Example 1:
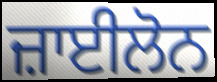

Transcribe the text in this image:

ਜ਼ਾਈਲੋਨ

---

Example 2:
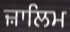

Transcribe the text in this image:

ਜ਼ਾਲਿਮ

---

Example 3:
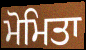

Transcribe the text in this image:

ਮੋਮਿਤਾ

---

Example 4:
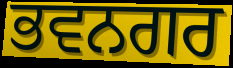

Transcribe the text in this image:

ਭਵਨਗਰ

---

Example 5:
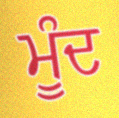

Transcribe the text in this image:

ਮੂੰਦ